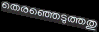
തെരഞ്ഞെടുത്തതു